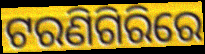
ଟରଣିଗିରିରେ